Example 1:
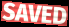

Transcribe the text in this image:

SAVED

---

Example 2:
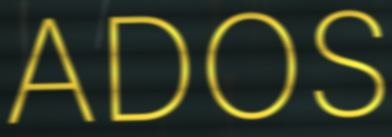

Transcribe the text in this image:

ADOS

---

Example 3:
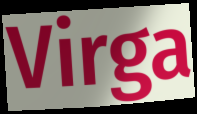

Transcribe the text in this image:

Virga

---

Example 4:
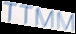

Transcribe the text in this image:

TTMM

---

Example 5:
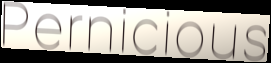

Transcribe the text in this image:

Pernicious